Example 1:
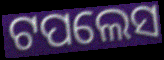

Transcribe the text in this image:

ଟପଲେସ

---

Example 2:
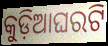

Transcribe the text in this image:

କୁଡ଼ିଆଘରଟି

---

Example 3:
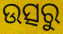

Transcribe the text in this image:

ଉତ୍ସରୁ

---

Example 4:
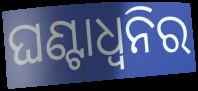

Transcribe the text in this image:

ଘଣ୍ଟାଧ୍ୱନିର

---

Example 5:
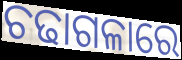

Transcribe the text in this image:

ଚଢାଗଳାରେ